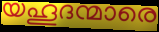
യഹൂദന്മാരെ